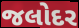
જલોદર